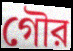
গৌর